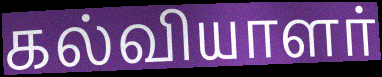
கல்வியாளர்